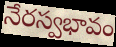
నేరస్వభావం